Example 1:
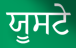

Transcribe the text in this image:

ਯੂਸਟੇ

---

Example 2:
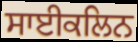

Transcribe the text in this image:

ਸਾਈਕਲਿਨ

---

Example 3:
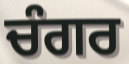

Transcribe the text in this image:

ਚੰਗਰ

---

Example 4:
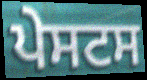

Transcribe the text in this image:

ਪੇਸਟਸ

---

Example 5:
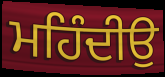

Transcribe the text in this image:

ਮਹਿੰਦੀਉ